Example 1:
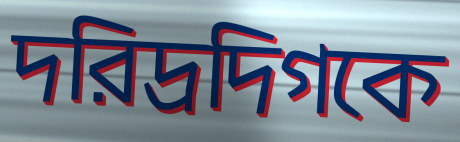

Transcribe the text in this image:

দরিদ্রদিগকে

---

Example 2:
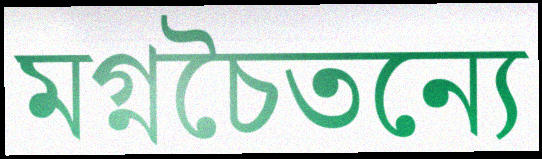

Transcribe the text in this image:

মগ্নচৈতন্যে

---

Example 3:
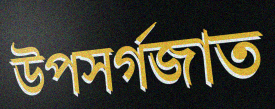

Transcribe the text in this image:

উপসর্গজাত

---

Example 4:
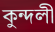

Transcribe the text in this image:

কুন্দলী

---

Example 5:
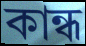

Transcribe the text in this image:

কান্ধ